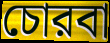
চোরবা